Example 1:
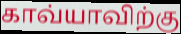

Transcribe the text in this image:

காவ்யாவிற்கு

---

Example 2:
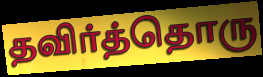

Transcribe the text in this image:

தவிர்த்தொரு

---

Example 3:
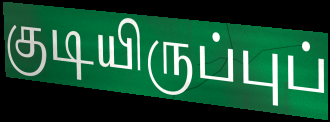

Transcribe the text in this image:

குடியிருப்புப்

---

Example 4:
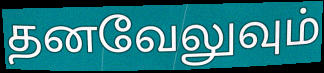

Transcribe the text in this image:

தனவேலுவும்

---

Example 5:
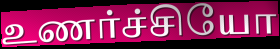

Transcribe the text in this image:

உணர்ச்சியோ